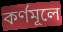
কর্ণমূলে